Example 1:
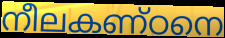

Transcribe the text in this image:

നീലകണ്ഠനെ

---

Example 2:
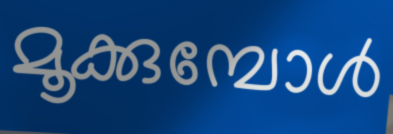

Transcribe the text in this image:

മൂക്കുമ്പോൾ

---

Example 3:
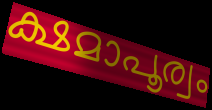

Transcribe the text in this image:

ക്ഷമാപൂര്വം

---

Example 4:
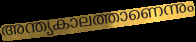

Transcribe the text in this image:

അന്ത്യകാലത്താണെന്നും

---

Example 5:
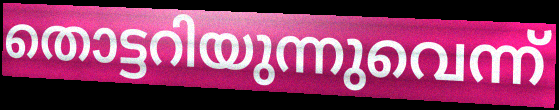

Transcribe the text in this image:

തൊട്ടറിയുന്നുവെന്ന്